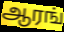
ஆரங்